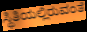
ಸ್ಥಿತಿಯಲ್ಲಿರುವಂತೆ